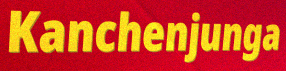
Kanchenjunga